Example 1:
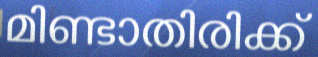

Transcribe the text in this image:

മിണ്ടാതിരിക്ക്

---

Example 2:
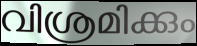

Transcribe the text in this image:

വിശ്രമിക്കും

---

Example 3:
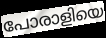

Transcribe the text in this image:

പോരാളിയെ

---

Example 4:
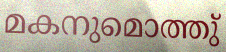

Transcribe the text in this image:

മകനുമൊത്തു്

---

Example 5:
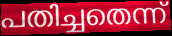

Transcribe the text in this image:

പതിച്ചതെന്ന്